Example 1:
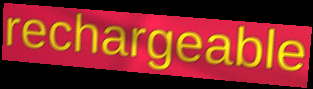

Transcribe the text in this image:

rechargeable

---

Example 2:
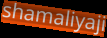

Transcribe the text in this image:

shamaliyaji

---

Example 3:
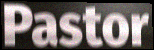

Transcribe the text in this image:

Pastor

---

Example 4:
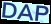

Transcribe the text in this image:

DAP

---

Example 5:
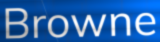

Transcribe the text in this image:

Browne